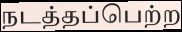
நடத்தப்பெற்ற